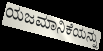
ಯಜಮಾನಿಕೆಯನ್ನು